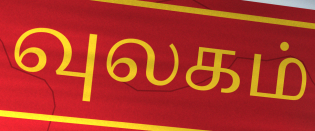
வுலகம்